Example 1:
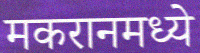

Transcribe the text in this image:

मकरानमध्ये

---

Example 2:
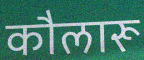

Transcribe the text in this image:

कौलारू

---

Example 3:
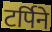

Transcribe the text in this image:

टर्पिने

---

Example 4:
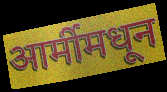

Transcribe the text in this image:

आर्मीमधून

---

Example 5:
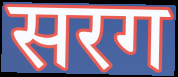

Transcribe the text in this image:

सरग